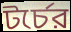
টর্চের